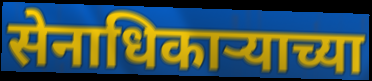
सेनाधिकाऱ्याच्या